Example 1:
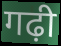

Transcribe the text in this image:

गढ़ी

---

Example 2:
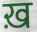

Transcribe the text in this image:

ख़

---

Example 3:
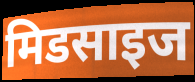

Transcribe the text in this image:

मिडसाइज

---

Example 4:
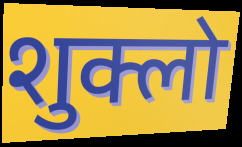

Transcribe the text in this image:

शुक्लो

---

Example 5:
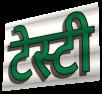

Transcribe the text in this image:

टेस्टी